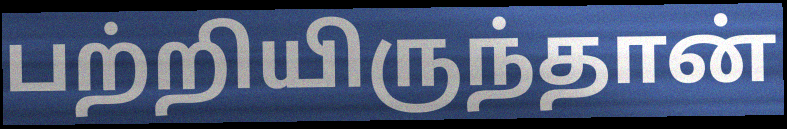
பற்றியிருந்தான்